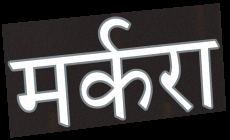
मर्करा